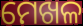
ମେଖଳ